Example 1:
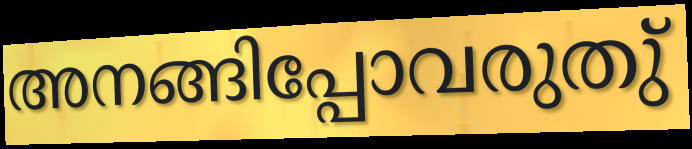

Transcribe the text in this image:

അനങ്ങിപ്പോവരുതു്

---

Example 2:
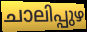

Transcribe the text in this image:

ചാലിപ്പുഴ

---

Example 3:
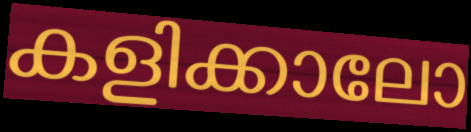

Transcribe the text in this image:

കളിക്കാലോ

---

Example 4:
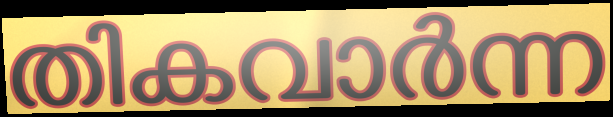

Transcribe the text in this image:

തികവാർന്ന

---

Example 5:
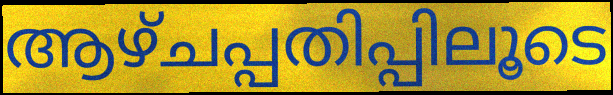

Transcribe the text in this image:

ആഴ്ചപ്പതിപ്പിലൂടെ